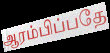
ஆரம்பிப்பதே